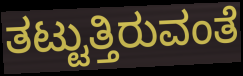
ತಟ್ಟುತ್ತಿರುವಂತೆ